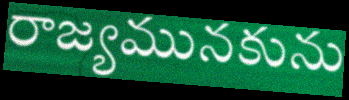
రాజ్యమునకును